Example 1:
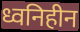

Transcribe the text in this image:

ध्वनिहीन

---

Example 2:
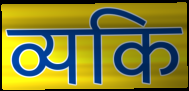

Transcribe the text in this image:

व्यकि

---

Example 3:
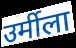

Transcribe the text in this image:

उर्मीला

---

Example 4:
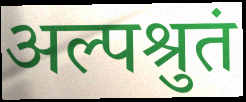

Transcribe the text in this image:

अल्पश्रुतं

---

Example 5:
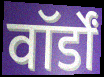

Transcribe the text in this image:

वॉर्डों